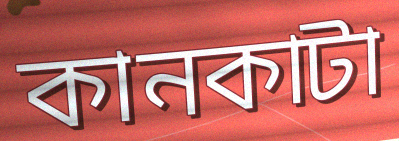
কানকাটা